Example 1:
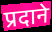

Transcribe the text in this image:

प्रदाने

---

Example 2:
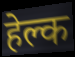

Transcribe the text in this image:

हेल्क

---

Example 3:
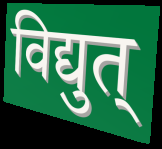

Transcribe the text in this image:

विद्युत्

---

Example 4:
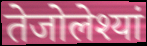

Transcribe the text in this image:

तेजोलेश्यां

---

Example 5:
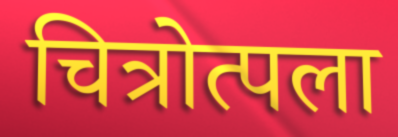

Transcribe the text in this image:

चित्रोत्पला